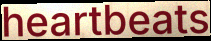
heartbeats